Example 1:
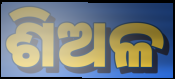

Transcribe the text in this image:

ଶିଅଳ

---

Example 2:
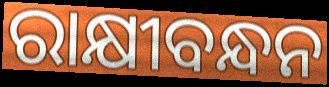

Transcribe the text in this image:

ରାକ୍ଷୀବନ୍ଧନ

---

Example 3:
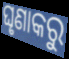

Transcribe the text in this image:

ଘୃଣାକରୁ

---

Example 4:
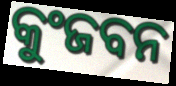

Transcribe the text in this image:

କୁଂଜବନ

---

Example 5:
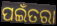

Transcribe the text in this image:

ପଇଁତରା